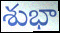
శుభా